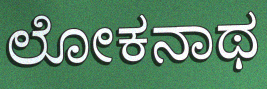
ಲೋಕನಾಥ